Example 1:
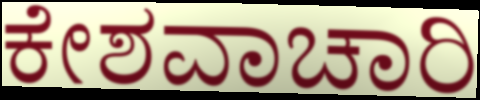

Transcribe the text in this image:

ಕೇಶವಾಚಾರಿ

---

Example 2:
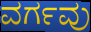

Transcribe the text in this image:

ವರ್ಗವು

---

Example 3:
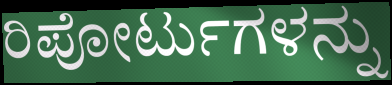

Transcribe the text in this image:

ರಿಪೋರ್ಟುಗಳನ್ನು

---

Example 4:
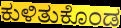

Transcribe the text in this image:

ಕುಳಿತುಕೊಂಡ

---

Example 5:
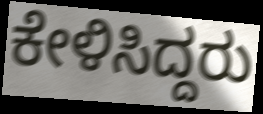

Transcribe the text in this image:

ಕೇಳಿಸಿದ್ದರು